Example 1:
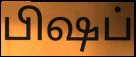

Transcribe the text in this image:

பிஷப்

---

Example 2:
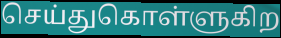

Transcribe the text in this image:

செய்துகொள்ளுகிற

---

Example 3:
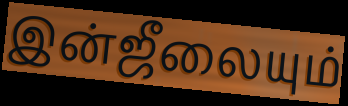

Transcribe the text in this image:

இன்ஜீலையும்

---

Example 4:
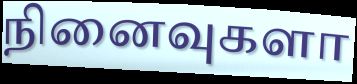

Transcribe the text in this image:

நினைவுகளா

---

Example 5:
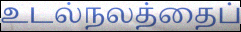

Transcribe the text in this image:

உடல்நலத்தைப்